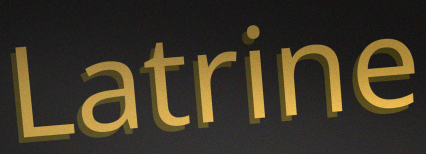
Latrine